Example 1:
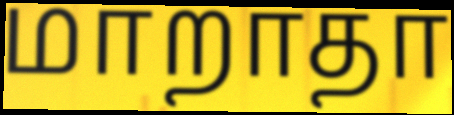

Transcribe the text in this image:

மாறாதா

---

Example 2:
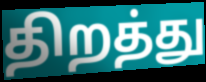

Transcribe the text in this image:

திறத்து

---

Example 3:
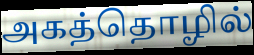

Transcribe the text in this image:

அகத்தொழில்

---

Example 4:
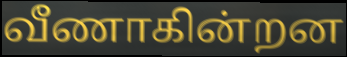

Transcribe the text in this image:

வீணாகின்றன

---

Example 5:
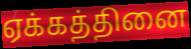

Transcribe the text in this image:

ஏக்கத்தினை